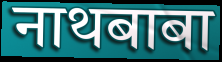
नाथबाबा